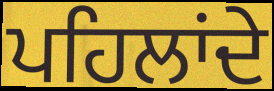
ਪਹਿਲਾਂਦੇ